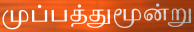
முப்பத்துமூன்று